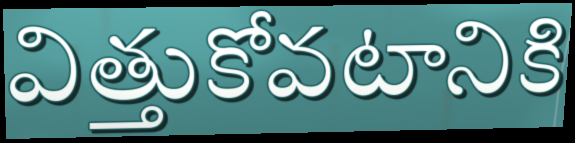
విత్తుకోవటానికి